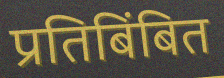
प्रतिबिंबित